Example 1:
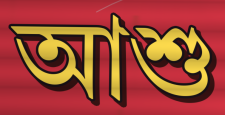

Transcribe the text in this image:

আশু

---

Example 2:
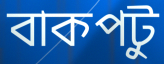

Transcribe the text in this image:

বাকপটু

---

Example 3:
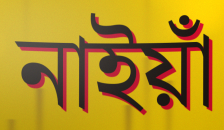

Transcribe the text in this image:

নাইয়াঁ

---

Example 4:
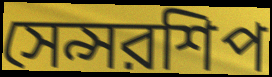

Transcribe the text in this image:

সেন্সরশিপ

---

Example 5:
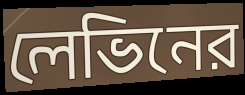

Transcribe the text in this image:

লেভিনের